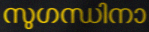
സുഗന്ധിനാ